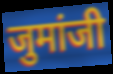
जुमांजी